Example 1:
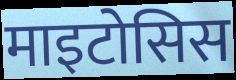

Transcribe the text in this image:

माइटोसिस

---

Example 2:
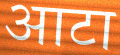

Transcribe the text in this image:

आटा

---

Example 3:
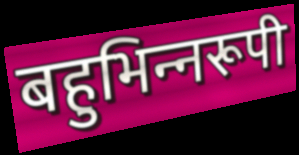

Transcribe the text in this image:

बहुभिन्नरूपी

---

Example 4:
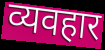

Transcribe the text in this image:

व्यवहार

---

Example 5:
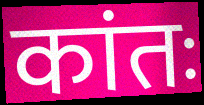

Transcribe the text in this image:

कांतः